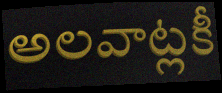
అలవాట్లకీ